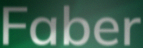
Faber